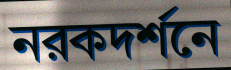
নরকদর্শনে